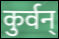
कुर्वन्